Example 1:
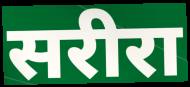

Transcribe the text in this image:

सरीरा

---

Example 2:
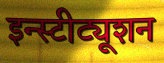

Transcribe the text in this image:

इन्स्टीट्यूशन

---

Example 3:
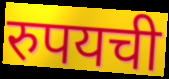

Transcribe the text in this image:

रुपयची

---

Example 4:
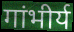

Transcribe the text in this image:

गांभीर्य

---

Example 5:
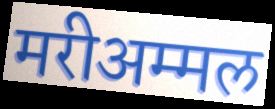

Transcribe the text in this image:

मरीअम्मल